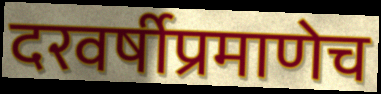
दरवर्षीप्रमाणेच